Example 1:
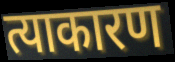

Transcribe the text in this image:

त्याकारण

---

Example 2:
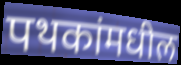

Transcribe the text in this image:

पथकांमधील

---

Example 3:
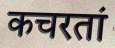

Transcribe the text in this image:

कचरतां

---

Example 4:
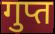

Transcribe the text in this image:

गुप्त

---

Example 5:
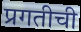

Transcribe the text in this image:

प्रगतीची